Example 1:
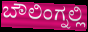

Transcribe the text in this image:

ಬೌಲಿಂಗ್ನಲ್ಲಿ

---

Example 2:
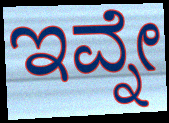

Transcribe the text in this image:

ಇವ್ನೇ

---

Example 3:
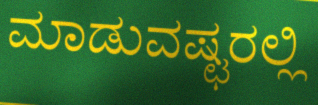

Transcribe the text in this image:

ಮಾಡುವಷ್ಟರಲ್ಲಿ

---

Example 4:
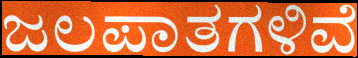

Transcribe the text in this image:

ಜಲಪಾತಗಳಿವೆ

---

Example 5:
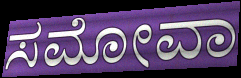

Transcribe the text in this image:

ಸಮೋವಾ